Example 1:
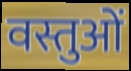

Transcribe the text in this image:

वस्तुओं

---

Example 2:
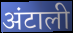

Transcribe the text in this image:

अंटाली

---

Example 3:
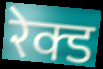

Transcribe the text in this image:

रेक्ड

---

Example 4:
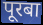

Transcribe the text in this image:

पूरबा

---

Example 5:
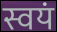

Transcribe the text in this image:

स्‍वयं